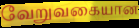
வேறுவகையான